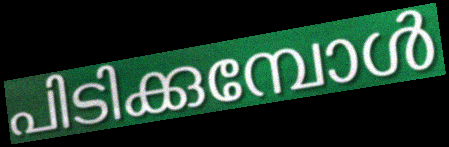
പിടിക്കുമ്പോൾ